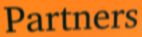
Partners